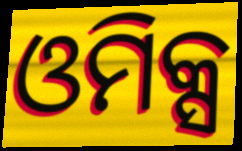
ଓମିକ୍ସ